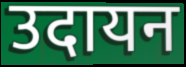
उदायन